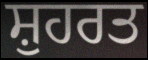
ਸ਼ੁਹਰਤ